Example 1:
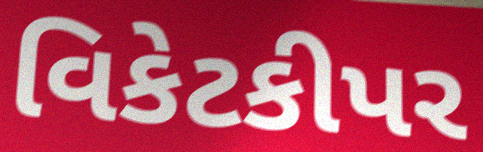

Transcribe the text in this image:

વિકેટકીપર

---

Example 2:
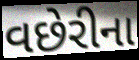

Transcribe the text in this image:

વછેરીના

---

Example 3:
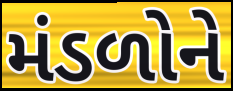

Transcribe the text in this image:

મંડળોને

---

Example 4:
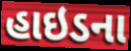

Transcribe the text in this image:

હાઇડના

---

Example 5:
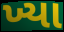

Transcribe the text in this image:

ખ્યા